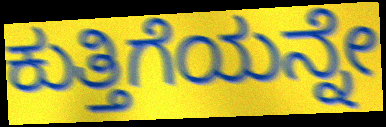
ಕುತ್ತಿಗೆಯನ್ನೇ